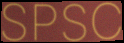
SPSC